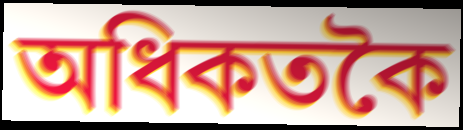
অধিকতকৈ